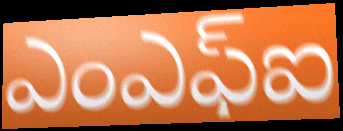
ఎంఎఫ్ఐ